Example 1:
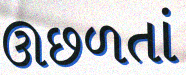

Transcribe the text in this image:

ઊછળતાં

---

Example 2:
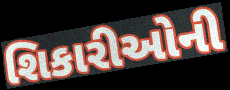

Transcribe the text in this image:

શિકારીઓની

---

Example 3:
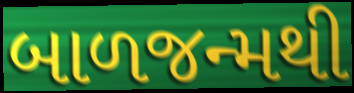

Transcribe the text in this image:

બાળજન્મથી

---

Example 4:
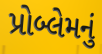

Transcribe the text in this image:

પ્રોબ્લેમનું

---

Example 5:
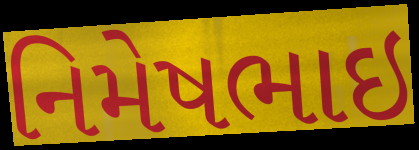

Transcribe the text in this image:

નિમેષભાઇ